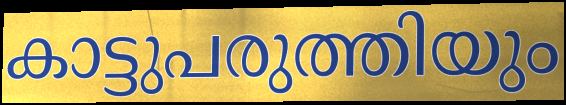
കാട്ടുപരുത്തിയും